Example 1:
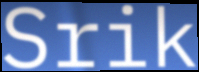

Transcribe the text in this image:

Srik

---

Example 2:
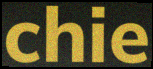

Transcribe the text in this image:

chie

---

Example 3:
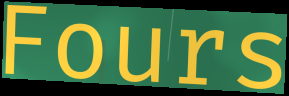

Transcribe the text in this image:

Fours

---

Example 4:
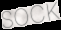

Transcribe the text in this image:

SOCK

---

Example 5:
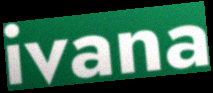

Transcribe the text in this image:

ivana